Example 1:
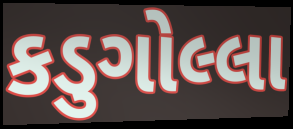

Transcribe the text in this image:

કડુગોલ્લા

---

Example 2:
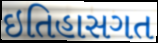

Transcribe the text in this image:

ઇતિહાસગત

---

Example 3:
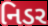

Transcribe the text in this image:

નિડર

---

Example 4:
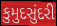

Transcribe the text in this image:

કુમુદસુંદરી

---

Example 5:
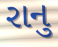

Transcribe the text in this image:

રાનુ